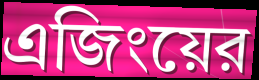
এজিংয়ের